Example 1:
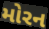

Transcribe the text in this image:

મોરન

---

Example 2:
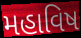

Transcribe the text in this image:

મહાવિષ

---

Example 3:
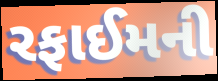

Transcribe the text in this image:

રફાઈમની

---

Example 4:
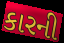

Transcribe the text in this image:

કારની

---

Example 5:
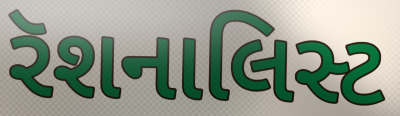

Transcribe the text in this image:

રૅશનાલિસ્ટ